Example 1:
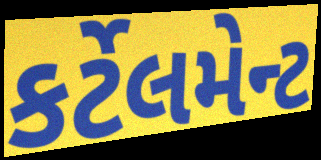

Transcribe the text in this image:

કર્ટેલમેન્ટ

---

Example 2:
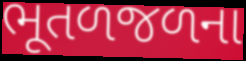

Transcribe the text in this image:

ભૂતળજળના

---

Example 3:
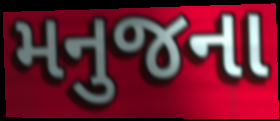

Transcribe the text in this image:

મનુજના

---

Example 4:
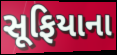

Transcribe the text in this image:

સૂફિયાના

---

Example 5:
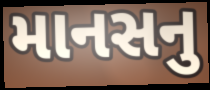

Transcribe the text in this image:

માનસનુ